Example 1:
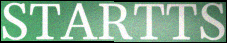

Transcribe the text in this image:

STARTTS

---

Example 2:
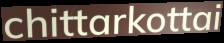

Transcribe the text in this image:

chittarkottai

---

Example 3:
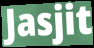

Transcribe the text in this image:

Jasjit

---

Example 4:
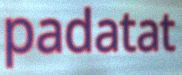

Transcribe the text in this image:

padatat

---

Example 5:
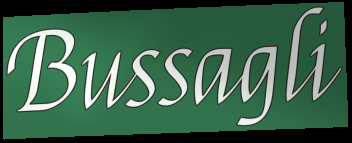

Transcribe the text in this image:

Bussagli